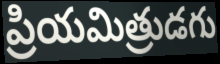
ప్రియమిత్రుడగు